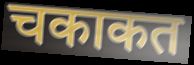
चकाकत